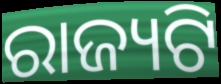
ରାଜ୍ୟଟି